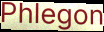
Phlegon